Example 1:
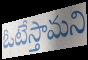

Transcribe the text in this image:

ఓటేస్తామని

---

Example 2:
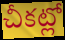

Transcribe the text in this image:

చీకట్లో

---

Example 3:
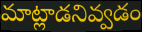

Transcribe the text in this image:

మాట్లాడనివ్వడం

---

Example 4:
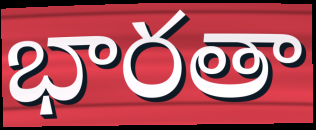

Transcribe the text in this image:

భారతా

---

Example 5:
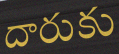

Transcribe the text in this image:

దారుకు